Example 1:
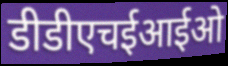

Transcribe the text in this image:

डीडीएचईआईओ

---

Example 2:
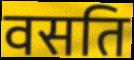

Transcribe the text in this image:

वसति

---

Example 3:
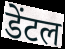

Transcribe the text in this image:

डेंटल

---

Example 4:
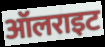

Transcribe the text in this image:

ऑलराइट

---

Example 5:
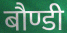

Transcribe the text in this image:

बौण्डी